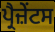
ਪ੍ਰੈਜ਼ੇਂਟਸ